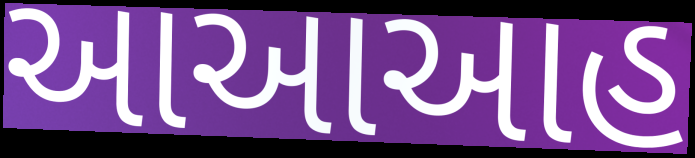
આઆઆહ